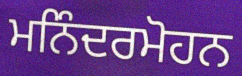
ਮਨਿੰਦਰਮੋਹਨ